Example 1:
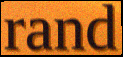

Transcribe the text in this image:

rand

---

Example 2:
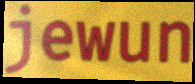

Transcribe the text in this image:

jewun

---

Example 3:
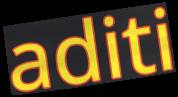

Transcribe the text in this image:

aditi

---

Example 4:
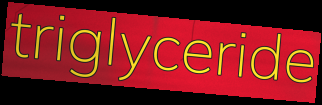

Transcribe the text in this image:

triglyceride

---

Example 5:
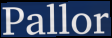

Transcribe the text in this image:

Pallor